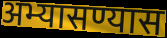
अभ्यासण्यास